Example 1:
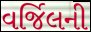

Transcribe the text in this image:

વર્જિલની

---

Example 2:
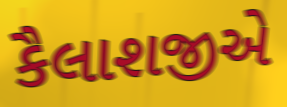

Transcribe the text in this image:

કૈલાશજીએ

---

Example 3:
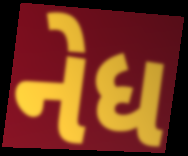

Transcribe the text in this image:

નેધ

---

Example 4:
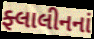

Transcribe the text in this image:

ફ્લાલીનનાં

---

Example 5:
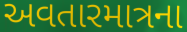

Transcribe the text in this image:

અવતારમાત્રના